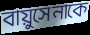
বায়ুসেনাকে